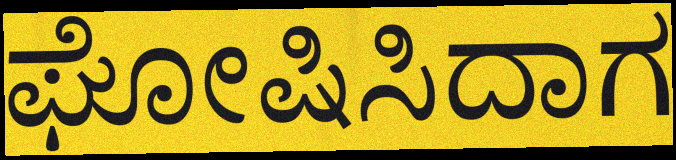
ಘೋಷಿಸಿದಾಗ